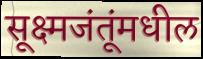
सूक्ष्मजंतूंमधील